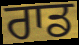
ਰਾਡ